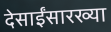
देसाईंसारख्या